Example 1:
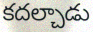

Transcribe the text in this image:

కదల్చాడు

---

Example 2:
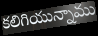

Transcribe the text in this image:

కలిగియున్నాము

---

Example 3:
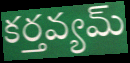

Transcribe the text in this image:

కర్తవ్యమ్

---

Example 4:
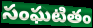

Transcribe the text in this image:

సంఘటితం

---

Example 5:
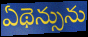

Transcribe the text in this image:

ఏథెన్సును